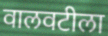
वालवटीला